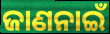
ଜାଣନାଇଁ